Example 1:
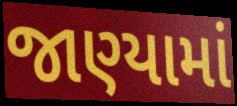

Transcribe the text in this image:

જાણ્યામાં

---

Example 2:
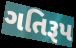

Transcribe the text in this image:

ગતિરૂપ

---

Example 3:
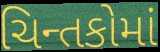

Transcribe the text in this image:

ચિન્તકોમાં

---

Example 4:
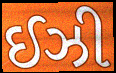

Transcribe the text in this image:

ઈઝી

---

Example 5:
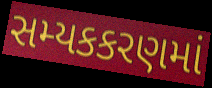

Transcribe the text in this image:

સમ્યકકરણમાં